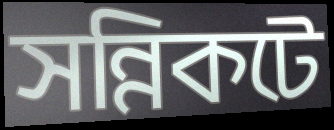
সন্নিকটে